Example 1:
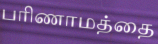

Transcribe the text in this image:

பரிணாமத்தை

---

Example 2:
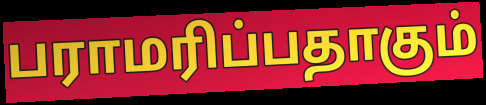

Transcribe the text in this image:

பராமரிப்பதாகும்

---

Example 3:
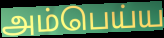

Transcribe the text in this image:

அம்பெய்ய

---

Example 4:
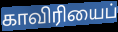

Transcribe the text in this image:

காவிரியைப்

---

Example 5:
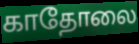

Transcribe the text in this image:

காதோலை